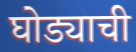
घोड्याची